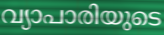
വ്യാപാരിയുടെ